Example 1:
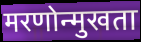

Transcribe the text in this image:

मरणोन्मुखता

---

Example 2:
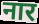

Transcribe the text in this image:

नार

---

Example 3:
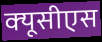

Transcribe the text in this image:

क्यूसीएस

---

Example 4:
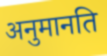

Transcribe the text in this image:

अनुमानति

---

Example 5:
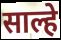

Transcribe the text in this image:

साल्हे